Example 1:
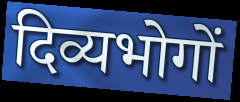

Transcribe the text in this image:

दिव्यभोगों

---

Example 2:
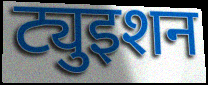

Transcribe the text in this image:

ट्युइशन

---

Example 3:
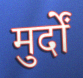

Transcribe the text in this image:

मुर्दों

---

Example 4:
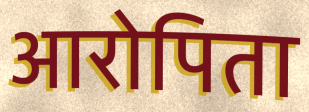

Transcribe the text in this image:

आरोपिता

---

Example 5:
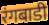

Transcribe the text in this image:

रंगबाडी